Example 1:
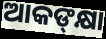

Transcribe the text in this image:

ଆକଙ୍‍କ୍ଷା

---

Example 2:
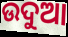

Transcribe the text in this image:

ଉଦୁଆ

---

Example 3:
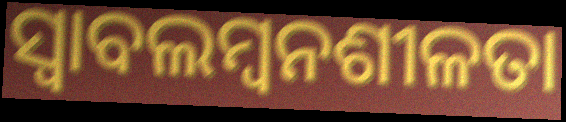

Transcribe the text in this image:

ସ୍ୱାବଲମ୍ବନଶୀଳତା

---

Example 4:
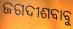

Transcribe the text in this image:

ଜଗଦୀଶବାବୁ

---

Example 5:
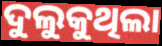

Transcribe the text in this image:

ଦୁଲୁକୁଥିଲା